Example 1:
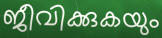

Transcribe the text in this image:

ജീവിക്കുകയും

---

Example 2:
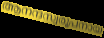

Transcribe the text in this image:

ആനന്ദസ്വരൂപനായ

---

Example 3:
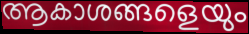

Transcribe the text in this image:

ആകാശങ്ങളെയും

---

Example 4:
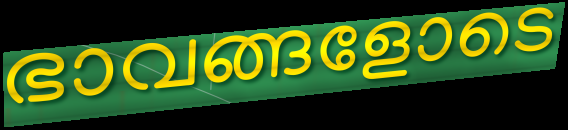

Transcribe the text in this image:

ഭാവങ്ങളോടെ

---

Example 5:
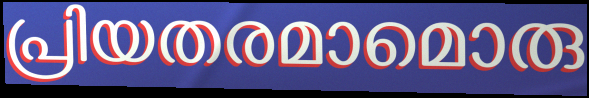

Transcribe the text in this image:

പ്രിയതരമാമൊരു